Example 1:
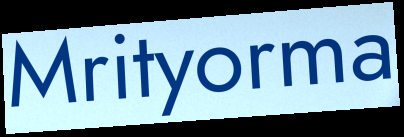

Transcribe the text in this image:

Mrityorma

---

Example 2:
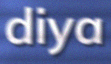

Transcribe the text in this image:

diya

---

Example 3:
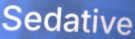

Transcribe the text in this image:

Sedative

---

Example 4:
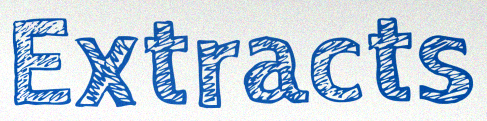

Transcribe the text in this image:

Extracts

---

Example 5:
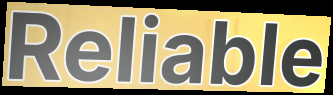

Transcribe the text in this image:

Reliable